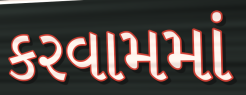
કરવામમાં